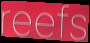
reefs